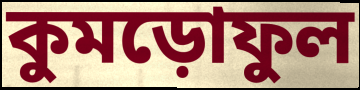
কুমড়োফুল